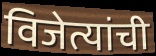
विजेत्यांची